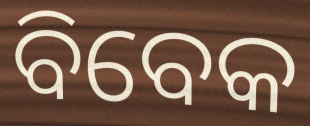
ବିବେକ